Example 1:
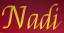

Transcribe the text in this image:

Nadi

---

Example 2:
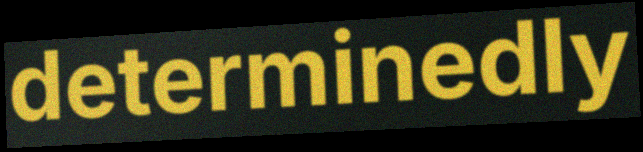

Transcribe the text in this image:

determinedly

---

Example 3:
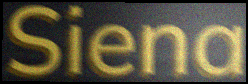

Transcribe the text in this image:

Siena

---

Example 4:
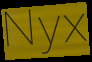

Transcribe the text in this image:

Nyx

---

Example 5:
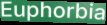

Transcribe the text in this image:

Euphorbia